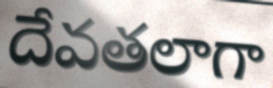
దేవతలాగా